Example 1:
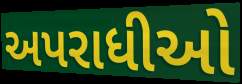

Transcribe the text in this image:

અપરાધીઓ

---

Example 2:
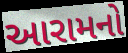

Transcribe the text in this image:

આરામનો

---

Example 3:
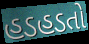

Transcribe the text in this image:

હડહડતો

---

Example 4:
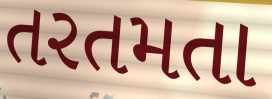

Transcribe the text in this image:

તરતમતા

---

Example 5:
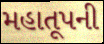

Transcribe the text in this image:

મહાતૂપની